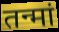
तन्मां